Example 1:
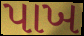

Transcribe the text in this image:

પાખ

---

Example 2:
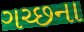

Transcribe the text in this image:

ગચ્છના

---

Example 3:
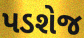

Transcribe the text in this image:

પડશેજ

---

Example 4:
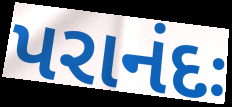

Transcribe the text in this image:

પરાનંદઃ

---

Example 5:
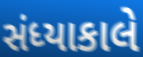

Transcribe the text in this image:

સંધ્યાકાલે